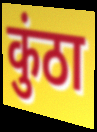
कुंठा